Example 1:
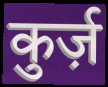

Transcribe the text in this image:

कुर्ज़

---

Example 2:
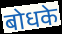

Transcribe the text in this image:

बोधके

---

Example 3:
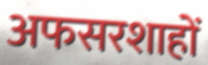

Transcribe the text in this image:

अफसरशाहों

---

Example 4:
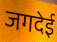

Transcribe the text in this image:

जगदेई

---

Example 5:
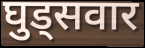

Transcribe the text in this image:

घुड्सवार